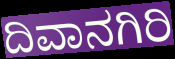
ದಿವಾನಗಿರಿ